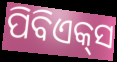
ପିବିଏକ୍‌ସ